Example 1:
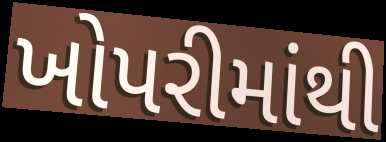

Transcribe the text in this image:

ખોપરીમાંથી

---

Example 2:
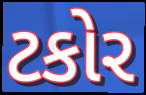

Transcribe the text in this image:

ટકોર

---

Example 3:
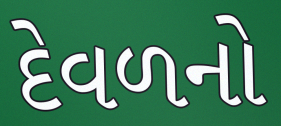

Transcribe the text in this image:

દેવળનો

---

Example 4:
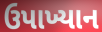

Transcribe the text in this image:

ઉપાખ્યાન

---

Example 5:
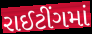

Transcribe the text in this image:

રાઈટીંગમાં